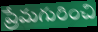
ప్రేమగురించి